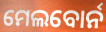
ମେଲବୋର୍ନ